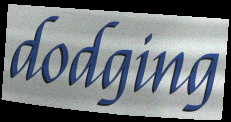
dodging